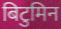
बिटुमिन